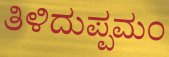
ತಿಳಿದುಪ್ಪಮಂ